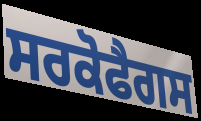
ਸਰਕੋਫੈਗਸ